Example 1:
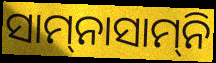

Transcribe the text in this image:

ସାମ୍‍ନାସାମ୍‍ନି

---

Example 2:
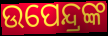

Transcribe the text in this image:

ଉପେନ୍ଦ୍ରଙ୍କ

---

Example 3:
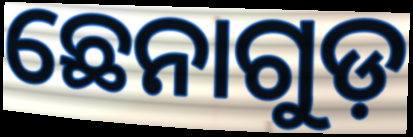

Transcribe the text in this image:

ଛେନାଗୁଡ଼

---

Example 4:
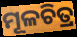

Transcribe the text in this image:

ମୂଳଚିତ୍ର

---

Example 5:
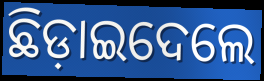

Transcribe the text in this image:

ଛିଡ଼ାଇଦେଲେ